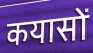
कयासों